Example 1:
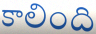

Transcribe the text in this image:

కాలింది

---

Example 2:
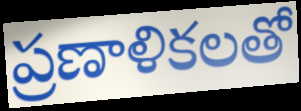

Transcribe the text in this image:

ప్రణాళికలతో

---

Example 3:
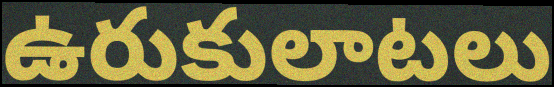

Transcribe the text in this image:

ఉరుకులాటలు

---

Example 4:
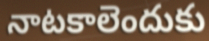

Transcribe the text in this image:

నాటకాలెందుకు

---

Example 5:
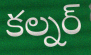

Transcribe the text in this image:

కల్నర్